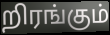
றிரங்கும்